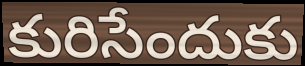
కురిసేందుకు